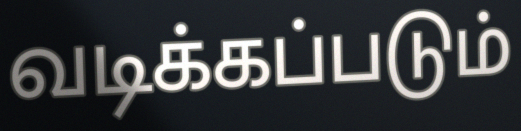
வடிக்கப்படும்